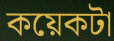
কয়েকটা